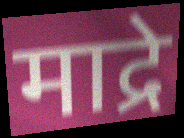
माद्रे